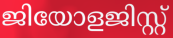
ജിയോളജിസ്റ്റ്